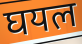
घयल